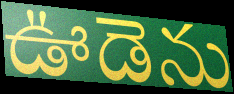
ఊడెను